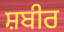
ਸ਼ਬੀਰ